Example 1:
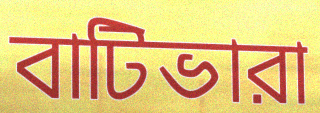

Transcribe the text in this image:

বাটিভারা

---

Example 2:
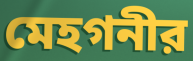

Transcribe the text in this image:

মেহগনীর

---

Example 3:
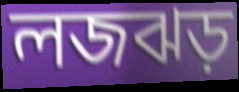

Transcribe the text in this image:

লজঝড়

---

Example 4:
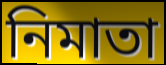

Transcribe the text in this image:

নিমাতা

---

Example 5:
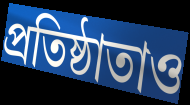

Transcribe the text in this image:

প্রতিষ্ঠাতাও